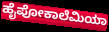
ಹೈಪೋಕಾಲೆಮಿಯಾ